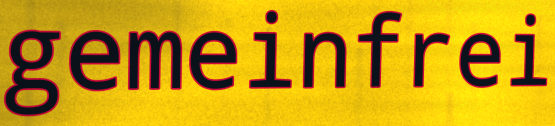
gemeinfrei